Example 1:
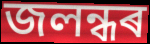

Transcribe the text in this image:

জলন্ধৰ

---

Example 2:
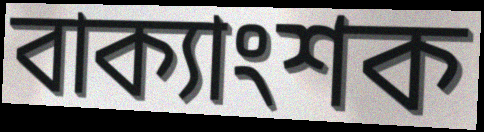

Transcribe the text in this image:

বাক্যাংশক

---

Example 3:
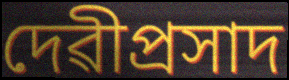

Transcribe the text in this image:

দেৱীপ্ৰসাদ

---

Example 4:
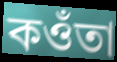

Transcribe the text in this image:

কওঁতা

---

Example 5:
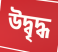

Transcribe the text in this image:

উদ্বৃদ্ধ